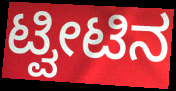
ಟ್ವೀಟಿನ